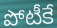
పోటీకే